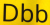
Dbb